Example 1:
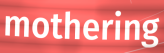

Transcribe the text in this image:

mothering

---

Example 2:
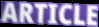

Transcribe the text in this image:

ARTICLE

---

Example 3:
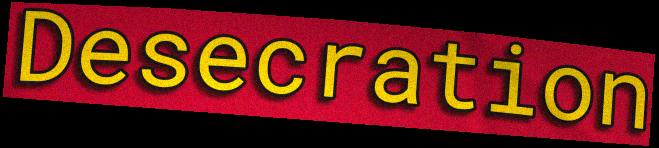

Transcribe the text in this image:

Desecration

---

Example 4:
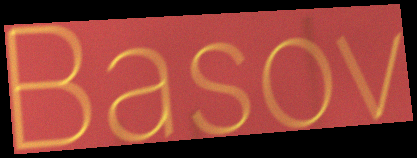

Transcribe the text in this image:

Basov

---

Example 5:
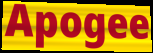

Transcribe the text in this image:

Apogee